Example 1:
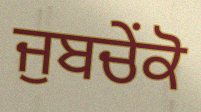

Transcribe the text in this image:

ਜੁਬਚੇਂਕੋ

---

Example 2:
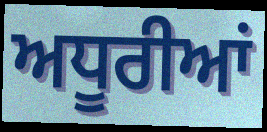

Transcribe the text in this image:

ਅਧੂਰੀਆਂ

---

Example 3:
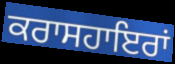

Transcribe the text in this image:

ਕਰਾਸਹਾਇਰਾਂ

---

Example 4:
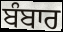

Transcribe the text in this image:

ਬੰਬਾਰ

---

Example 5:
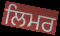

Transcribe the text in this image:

ਲਿਮਰ